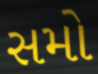
સમો